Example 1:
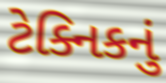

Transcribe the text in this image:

ટેક્નિકનું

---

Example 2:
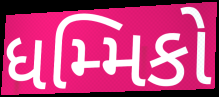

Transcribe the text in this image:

ધમ્મિકો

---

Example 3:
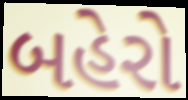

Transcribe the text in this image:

બહેરો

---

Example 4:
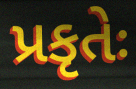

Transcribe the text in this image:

પ્રકૃતેઃ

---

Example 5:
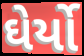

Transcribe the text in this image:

ઘેર્યો